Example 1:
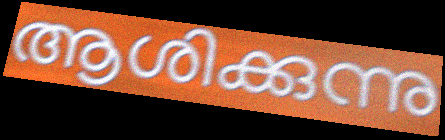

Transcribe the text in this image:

ആശിക്കുന്നു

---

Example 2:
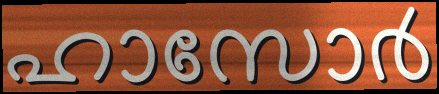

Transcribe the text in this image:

ഹാസോർ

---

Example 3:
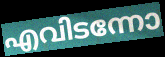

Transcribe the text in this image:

എവിടന്നോ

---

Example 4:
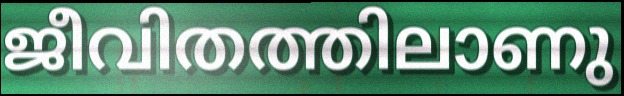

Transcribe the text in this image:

ജീവിതത്തിലാണു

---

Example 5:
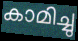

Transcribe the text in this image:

കാമിച്ചു